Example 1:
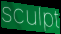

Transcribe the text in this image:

sculpt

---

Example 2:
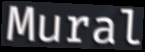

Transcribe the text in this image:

Mural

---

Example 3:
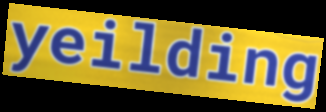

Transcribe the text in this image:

yeilding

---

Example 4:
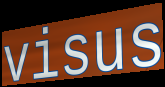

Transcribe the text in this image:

visus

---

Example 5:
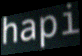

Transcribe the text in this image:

hapi